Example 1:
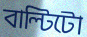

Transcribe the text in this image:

বাল্টিটো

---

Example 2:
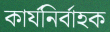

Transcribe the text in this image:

কাৰ্যনিৰ্বাহক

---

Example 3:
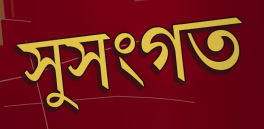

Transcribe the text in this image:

সুসংগত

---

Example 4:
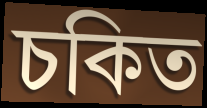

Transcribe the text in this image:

চকিত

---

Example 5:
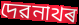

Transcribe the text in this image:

দেৱনাথৰ